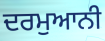
ਦਰਮੁਆਨੀ